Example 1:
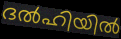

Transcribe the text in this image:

ദൽഹിയിൽ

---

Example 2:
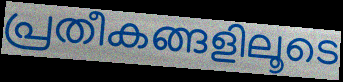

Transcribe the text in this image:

പ്രതീകങ്ങളിലൂടെ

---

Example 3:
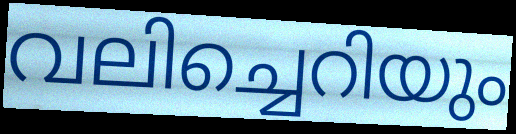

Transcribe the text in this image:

വലിച്ചെറിയും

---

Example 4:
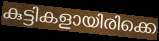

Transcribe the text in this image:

കുട്ടികളായിരിക്കെ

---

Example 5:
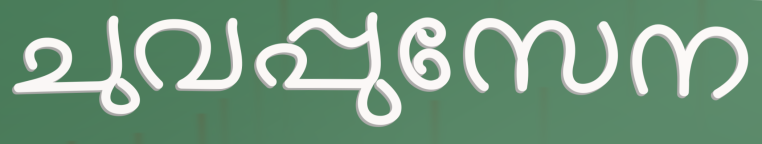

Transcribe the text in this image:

ചുവപ്പുസേന